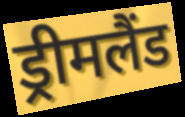
ड्रीमलैंड